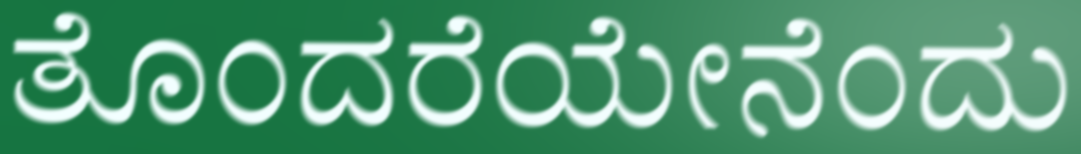
ತೊಂದರೆಯೇನೆಂದು